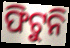
ଫିଟୁନି